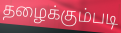
தழைக்கும்படி